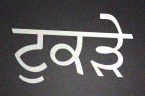
ਟੁਕੜੇ